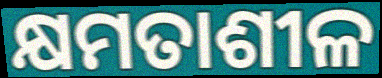
କ୍ଷମତାଶୀଳ